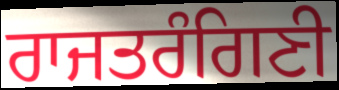
ਰਾਜਤਰੰਗਿਣੀ